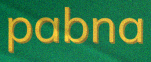
pabna